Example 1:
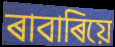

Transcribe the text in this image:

ৰাবাৰিয়ে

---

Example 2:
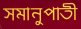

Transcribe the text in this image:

সমানুপাতী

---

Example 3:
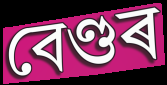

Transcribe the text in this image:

বেণ্ডৰ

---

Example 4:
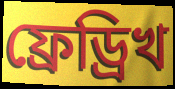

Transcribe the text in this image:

ফ্ৰেড্ৰিখ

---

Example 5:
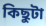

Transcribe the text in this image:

কিছুটা